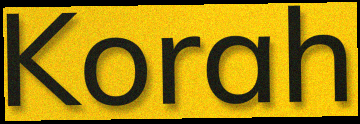
Korah